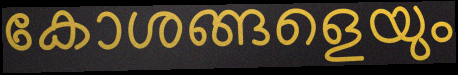
കോശങ്ങളെയും